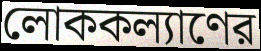
লোককল্যাণের